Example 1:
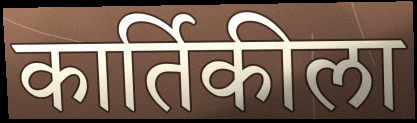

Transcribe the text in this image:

कार्तिकीला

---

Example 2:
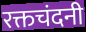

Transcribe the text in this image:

रक्तचंदनी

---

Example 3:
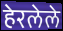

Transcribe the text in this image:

हेरलेले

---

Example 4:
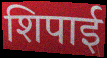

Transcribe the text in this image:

शिपाई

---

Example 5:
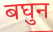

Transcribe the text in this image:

बघुन